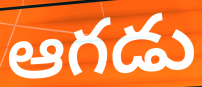
ఆగడు